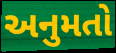
અનુમતો